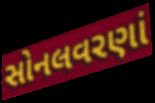
સોનલવરણાં